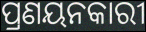
ପ୍ରଣୟନକାରୀ